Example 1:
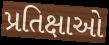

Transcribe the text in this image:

પ્રતિક્ષાઓ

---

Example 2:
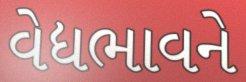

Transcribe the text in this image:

વેદ્યભાવને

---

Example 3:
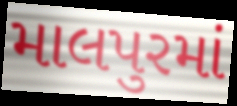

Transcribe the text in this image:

માલપુરમાં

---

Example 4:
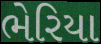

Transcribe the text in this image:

ભેરિયા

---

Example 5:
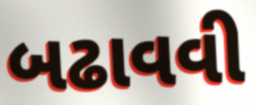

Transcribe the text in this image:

બઢાવવી